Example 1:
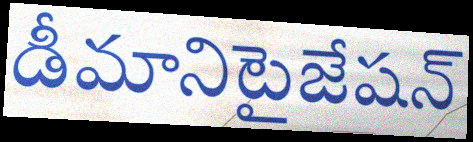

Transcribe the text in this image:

డీమానిటైజేషన్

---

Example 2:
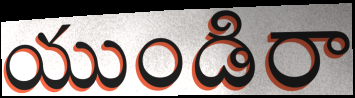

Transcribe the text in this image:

యుండిరా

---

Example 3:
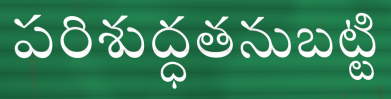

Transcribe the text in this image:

పరిశుద్ధతనుబట్టి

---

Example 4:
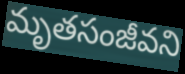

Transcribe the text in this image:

మృతసంజీవని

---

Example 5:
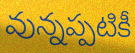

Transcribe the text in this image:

వున్నప్పటికీ